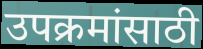
उपक्रमांसाठी